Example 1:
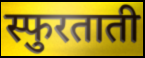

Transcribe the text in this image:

स्फुरताती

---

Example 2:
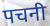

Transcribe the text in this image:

पचनी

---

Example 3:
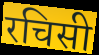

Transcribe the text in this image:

रचिसी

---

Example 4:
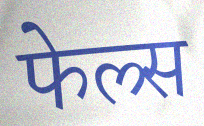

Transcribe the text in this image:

फेल्स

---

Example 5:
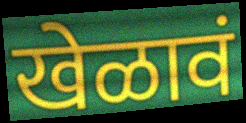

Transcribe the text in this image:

खेळावं